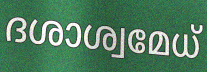
ദശാശ്വമേധ്